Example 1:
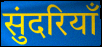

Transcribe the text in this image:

सुंदरियाँ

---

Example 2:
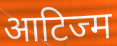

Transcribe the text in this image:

आटिज्म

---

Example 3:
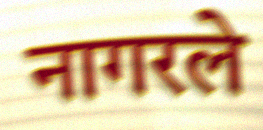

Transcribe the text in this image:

नागरले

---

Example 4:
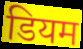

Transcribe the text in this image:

डियम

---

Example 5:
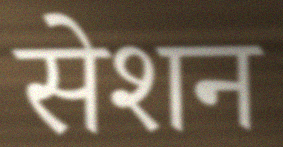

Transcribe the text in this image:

सेशन